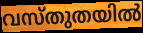
വസ്തുതയിൽ